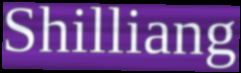
Shilliang